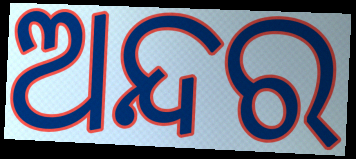
ଅନ୍ଦର